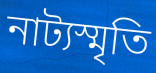
নাট্যস্মৃতি